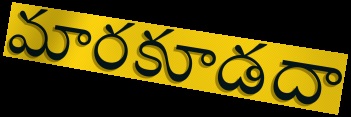
మారకూడదా